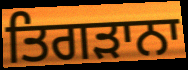
ਤਿਗੜਾਨਾ